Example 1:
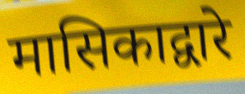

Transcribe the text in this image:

मासिकाद्वारे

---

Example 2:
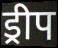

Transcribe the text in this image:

ड्रीप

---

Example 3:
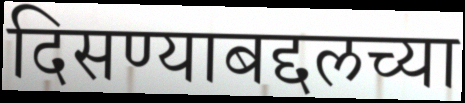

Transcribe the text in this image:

दिसण्याबद्दलच्या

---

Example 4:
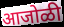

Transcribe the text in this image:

आजोळी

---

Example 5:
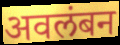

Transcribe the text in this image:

अवलंबन